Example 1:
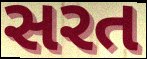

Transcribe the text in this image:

સરત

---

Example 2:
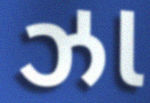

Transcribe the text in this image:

ઝા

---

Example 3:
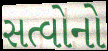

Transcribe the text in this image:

સત્વોનો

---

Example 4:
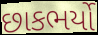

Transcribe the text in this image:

છાકભર્યો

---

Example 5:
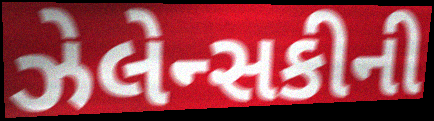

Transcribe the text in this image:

ઝેલેન્સકીની